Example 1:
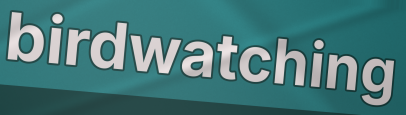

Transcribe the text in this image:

birdwatching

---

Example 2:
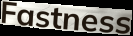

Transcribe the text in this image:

Fastness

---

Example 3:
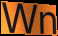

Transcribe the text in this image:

Wn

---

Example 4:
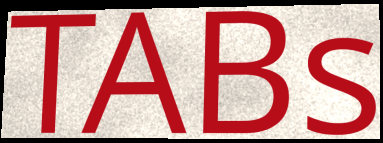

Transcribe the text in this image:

TABs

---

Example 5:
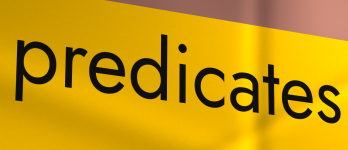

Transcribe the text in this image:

predicates